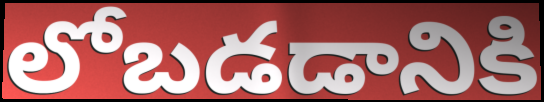
లోబడడానికి